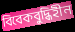
বিবেকবুদ্ধিহীন